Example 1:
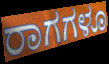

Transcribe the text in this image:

ರಾಗಗಳೂ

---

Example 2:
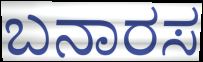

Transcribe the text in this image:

ಬನಾರಸ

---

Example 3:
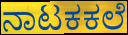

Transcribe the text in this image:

ನಾಟಕಕಲೆ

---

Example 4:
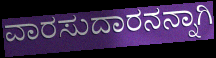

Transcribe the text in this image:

ವಾರಸುದಾರನನ್ನಾಗಿ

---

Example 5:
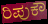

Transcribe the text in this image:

ರಿಪುಕೌ